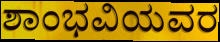
ಶಾಂಭವಿಯವರ